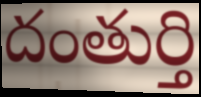
దంతుర్తి